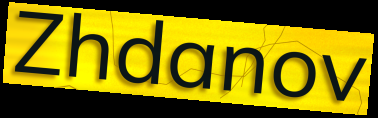
Zhdanov